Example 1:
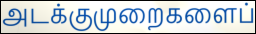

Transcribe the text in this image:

அடக்குமுறைகளைப்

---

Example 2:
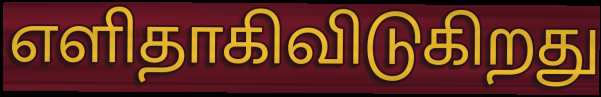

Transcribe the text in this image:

எளிதாகிவிடுகிறது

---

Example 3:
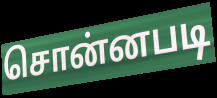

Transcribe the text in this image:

சொன்னபடி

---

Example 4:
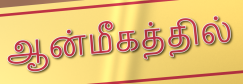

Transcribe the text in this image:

ஆன்மீகத்தில்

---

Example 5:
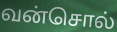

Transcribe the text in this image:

வன்சொல்